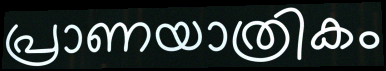
പ്രാണയാത്രികം